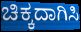
ಚಿಕ್ಕದಾಗಿಸಿ